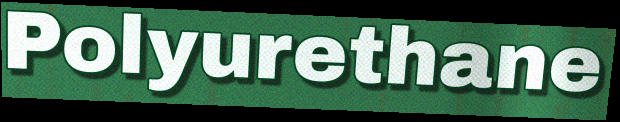
Polyurethane